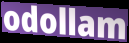
odollam